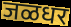
जळधर